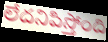
లేదనిపిస్తోంది